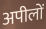
अपीलों